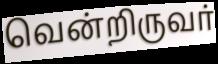
வென்றிருவர்